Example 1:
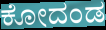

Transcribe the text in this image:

ಕೋದಂಡ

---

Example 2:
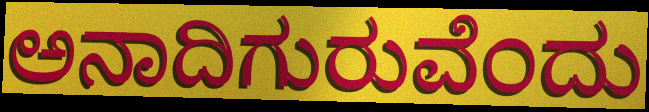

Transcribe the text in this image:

ಅನಾದಿಗುರುವೆಂದು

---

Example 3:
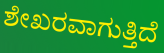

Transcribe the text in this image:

ಶೇಖರವಾಗುತ್ತಿದೆ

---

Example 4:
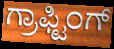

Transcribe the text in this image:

ಗ್ರಾಫ್ಟಿಂಗ್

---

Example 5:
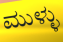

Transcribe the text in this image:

ಮುಳ್ಳು